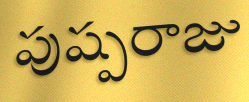
పుష్పరాజు